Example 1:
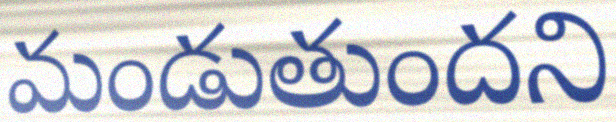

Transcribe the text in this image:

మండుతుందని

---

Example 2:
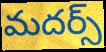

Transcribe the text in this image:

మదర్స్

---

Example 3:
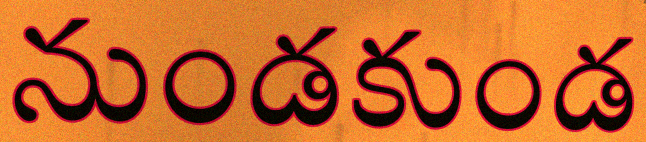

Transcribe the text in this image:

నుండకుండ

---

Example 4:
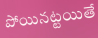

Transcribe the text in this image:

పోయినట్టయితే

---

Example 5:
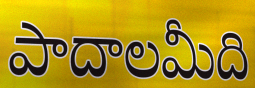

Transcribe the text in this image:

పాదాలమీది